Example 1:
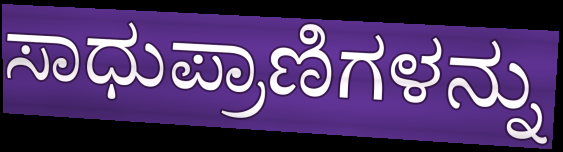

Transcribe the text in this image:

ಸಾಧುಪ್ರಾಣಿಗಳನ್ನು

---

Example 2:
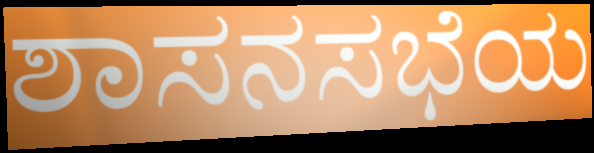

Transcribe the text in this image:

ಶಾಸನಸಭೆಯ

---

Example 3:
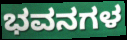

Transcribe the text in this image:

ಭವನಗಳ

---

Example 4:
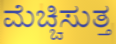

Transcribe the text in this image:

ಮೆಚ್ಚಿಸುತ್ತ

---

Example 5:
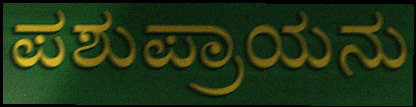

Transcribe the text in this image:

ಪಶುಪ್ರಾಯನು